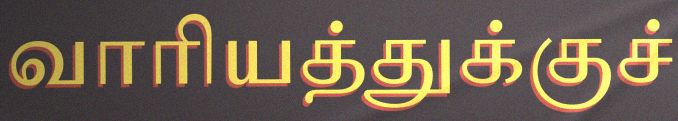
வாரியத்துக்குச்